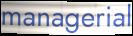
managerial